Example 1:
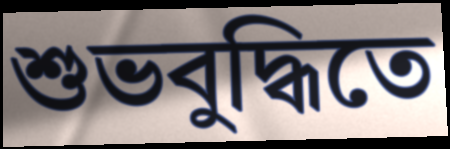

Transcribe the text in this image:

শুভবুদ্ধিতে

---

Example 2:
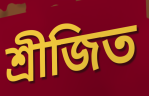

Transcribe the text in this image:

শ্রীজিত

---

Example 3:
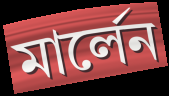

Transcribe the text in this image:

মার্লেন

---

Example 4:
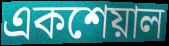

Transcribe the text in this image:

একশেয়াল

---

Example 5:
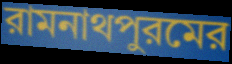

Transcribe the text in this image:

রামনাথপুরমের